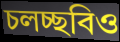
চলচ্ছবিও